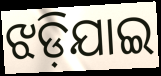
ଝଡ଼ିଯାଇ